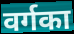
वर्गका